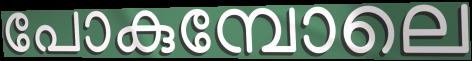
പോകുമ്പോലെ